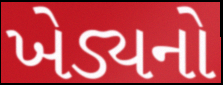
ખેડ્યનો